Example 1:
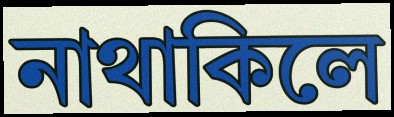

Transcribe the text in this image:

নাথাকিলে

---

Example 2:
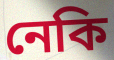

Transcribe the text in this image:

নেকি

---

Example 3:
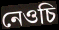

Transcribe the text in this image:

নেওচি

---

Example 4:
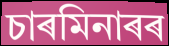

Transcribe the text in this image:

চাৰমিনাৰৰ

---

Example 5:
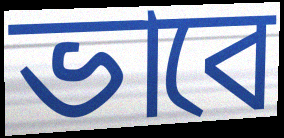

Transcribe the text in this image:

ভাবে